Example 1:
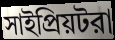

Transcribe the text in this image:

সাইপ্রিয়টরা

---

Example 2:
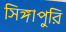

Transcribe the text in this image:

সিঙ্গাপুরি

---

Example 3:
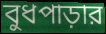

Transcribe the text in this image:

বুধপাড়ার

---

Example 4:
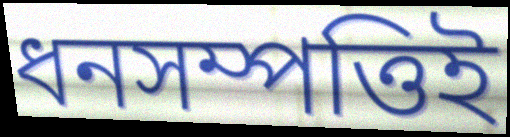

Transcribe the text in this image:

ধনসম্পত্তিই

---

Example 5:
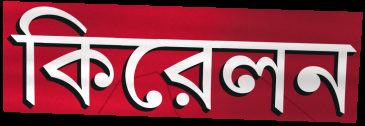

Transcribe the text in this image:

কিরেলন